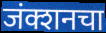
जंक्‍शनचा